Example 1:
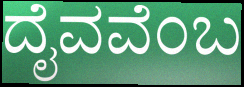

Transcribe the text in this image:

ದೈವವೆಂಬ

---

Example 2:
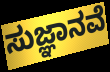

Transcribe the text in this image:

ಸುಜ್ಞಾನವೆ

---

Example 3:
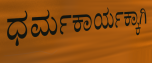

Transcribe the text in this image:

ಧರ್ಮಕಾರ್ಯಕ್ಕಾಗಿ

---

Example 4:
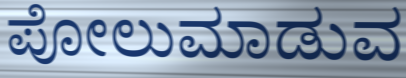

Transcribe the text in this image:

ಪೋಲುಮಾಡುವ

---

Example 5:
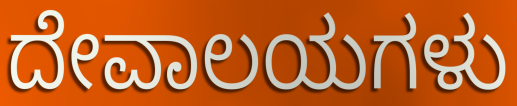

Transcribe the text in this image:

ದೇವಾಲಯಗಳು